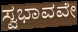
ಸ್ವಭಾವವೇ